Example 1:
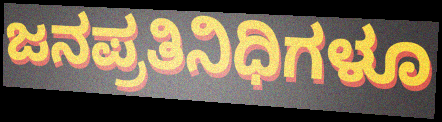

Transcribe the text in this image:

ಜನಪ್ರತಿನಿಧಿಗಳೂ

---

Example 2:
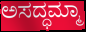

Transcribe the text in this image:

ಅಸದ್ಧಮ್ಮಾ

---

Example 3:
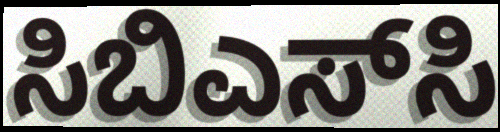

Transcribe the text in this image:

ಸಿಬಿಎಸ್‌ಸಿ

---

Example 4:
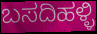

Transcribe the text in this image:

ಬಸದಿಹಳ್ಳಿ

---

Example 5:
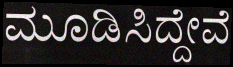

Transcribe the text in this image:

ಮೂಡಿಸಿದ್ದೇವೆ